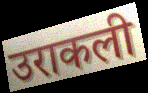
उराकली